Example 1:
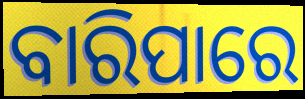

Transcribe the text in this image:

ବାରିପାରେ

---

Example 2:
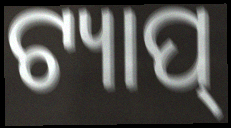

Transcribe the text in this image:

ଟ୍ୟାପ୍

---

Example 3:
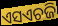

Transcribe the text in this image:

ଏସଏଚଜି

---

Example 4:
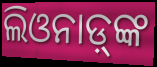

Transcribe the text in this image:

ଲିଓନାଡ଼୍‌ଙ୍କ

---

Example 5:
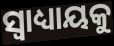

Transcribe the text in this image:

ସ୍ୱାଧ୍ୟାୟକୁ